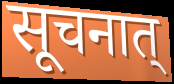
सूचनात्